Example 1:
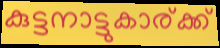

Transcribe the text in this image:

കുട്ടനാട്ടുകാര്ക്ക്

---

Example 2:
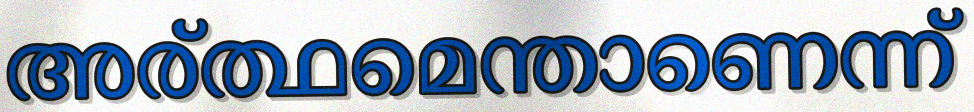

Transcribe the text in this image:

അര്ത്ഥമെന്താണെന്ന്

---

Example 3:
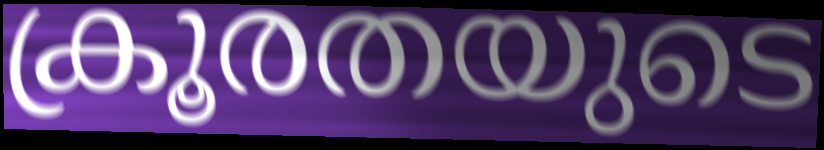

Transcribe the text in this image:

ക്രൂരതയുടെ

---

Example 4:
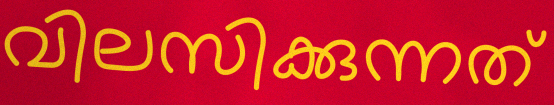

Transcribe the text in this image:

വിലസിക്കുന്നത്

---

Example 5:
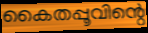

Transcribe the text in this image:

കൈതപ്പൂവിന്റെ